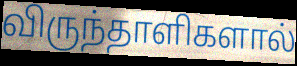
விருந்தாளிகளால்